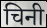
चिनी